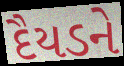
દૈયડને